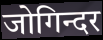
जोगिन्दर